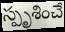
స్పృశించే